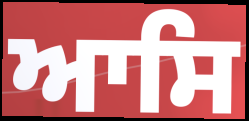
ਆਸਿ